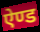
ऐण्ड